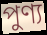
পুণ্য